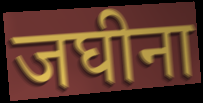
जघीना